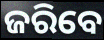
ଜରିବେ